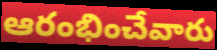
ఆరంభించేవారు